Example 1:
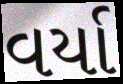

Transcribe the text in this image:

વર્યા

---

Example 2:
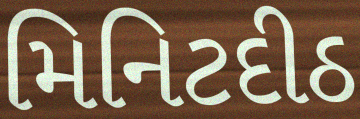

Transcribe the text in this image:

મિનિટદીઠ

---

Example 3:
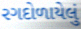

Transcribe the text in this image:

રગદોળાયેલું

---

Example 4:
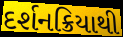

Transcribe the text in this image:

દર્શનક્રિયાથી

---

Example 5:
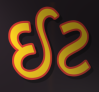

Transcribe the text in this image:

ઈટ